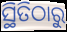
ସ୍ଥିତିଠାରୁ